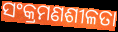
ସଂକ୍ରମଣଶୀଳତା